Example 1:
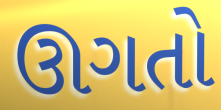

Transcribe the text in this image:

ઊગતો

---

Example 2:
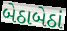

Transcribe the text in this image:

બેઠાબેઠાં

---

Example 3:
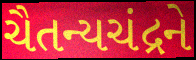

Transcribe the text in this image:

ચૈતન્યચંદ્રને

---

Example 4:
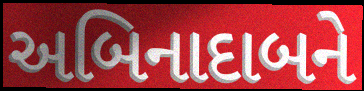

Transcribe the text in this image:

અબિનાદાબને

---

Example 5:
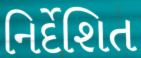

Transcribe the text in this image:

નિર્દેશિત